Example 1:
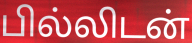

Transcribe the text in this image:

பில்லிடன்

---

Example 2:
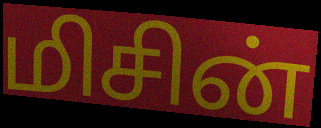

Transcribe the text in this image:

மிசின்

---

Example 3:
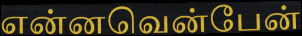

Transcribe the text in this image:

என்னவென்பேன்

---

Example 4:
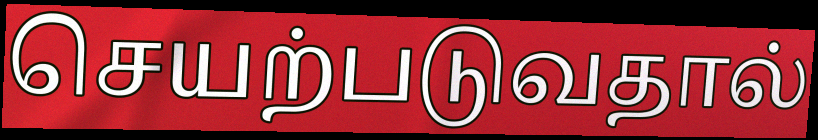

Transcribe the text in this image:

செயற்படுவதால்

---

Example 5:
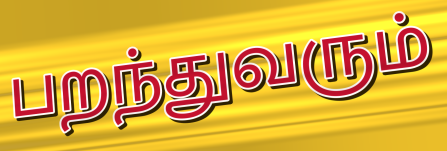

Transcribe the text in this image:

பறந்துவரும்